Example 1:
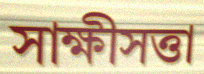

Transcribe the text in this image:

সাক্ষীসত্তা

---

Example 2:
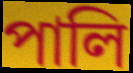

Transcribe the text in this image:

পালি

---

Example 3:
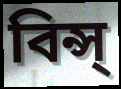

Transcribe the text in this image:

বিন্স্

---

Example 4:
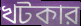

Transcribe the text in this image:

খটকার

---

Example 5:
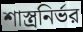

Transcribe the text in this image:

শাস্ত্রনির্ভর